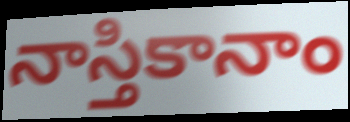
నాస్తికానాం